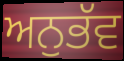
ਅਨੁਭੱਵ